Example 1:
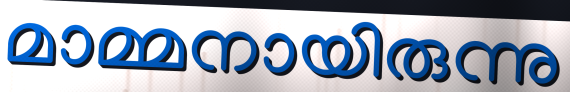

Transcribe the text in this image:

മാമ്മനായിരുന്നു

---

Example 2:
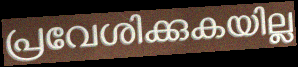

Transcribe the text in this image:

പ്രവേശിക്കുകയില്ല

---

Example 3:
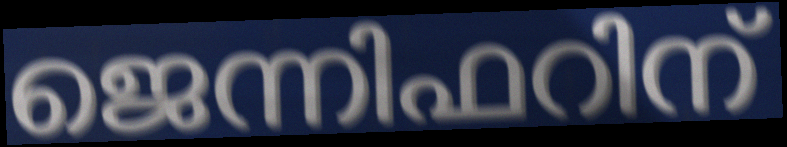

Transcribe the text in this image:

ജെന്നിഫറിന്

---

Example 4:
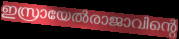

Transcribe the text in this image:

ഇസ്രായേൽരാജാവിന്റെ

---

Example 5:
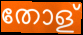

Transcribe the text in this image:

തോള്